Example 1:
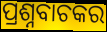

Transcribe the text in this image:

ପ୍ରଶ୍ନବାଚକର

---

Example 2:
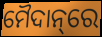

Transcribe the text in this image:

ମୈଦାନ୍‌ରେ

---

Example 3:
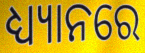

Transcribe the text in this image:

ଧ୍ୟ୍ୟାନରେ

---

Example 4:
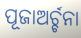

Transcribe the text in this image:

ପୂଜାଅର୍ଚ୍ଚନା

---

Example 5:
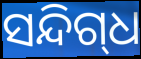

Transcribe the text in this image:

ସନ୍ଦିଗ୍‌ଧ